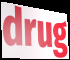
drug